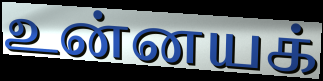
உன்னயக்